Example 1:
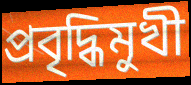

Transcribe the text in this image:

প্রবৃদ্ধিমুখী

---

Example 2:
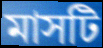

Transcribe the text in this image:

মাসটি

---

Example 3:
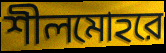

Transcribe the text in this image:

শীলমোহরে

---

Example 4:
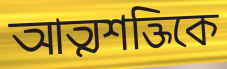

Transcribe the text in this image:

আত্মশক্তিকে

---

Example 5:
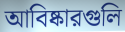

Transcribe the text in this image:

আবিষ্কারগুলি